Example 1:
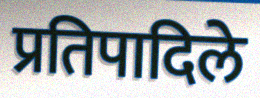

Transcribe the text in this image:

प्रतिपादिले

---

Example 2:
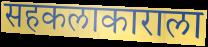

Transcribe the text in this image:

सहकलाकाराला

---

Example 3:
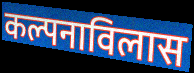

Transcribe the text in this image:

कल्पनाविलास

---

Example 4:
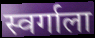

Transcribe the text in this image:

स्वर्गाला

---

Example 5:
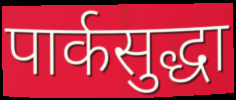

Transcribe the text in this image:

पार्कसुद्धा